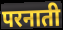
परनाती